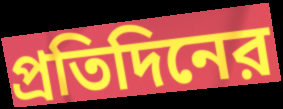
প্রতিদিনের